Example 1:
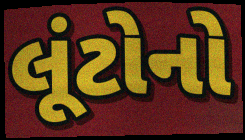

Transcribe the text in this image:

લૂંટોનો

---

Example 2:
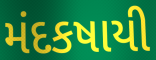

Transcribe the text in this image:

મંદકષાયી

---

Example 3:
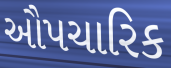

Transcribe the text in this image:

ઔપચારિક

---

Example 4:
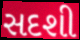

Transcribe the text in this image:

સદશી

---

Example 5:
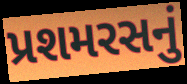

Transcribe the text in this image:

પ્રશમરસનું